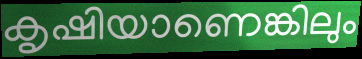
കൃഷിയാണെങ്കിലും